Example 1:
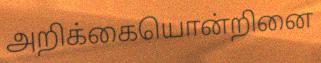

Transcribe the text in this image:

அறிக்கையொன்றினை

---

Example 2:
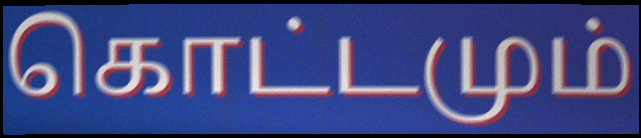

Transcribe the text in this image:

கொட்டமும்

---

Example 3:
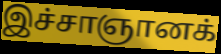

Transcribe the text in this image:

இச்சாஞானக்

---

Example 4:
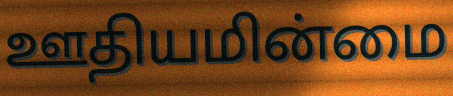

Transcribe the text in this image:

ஊதியமின்மை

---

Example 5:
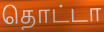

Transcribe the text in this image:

தொட்டா